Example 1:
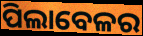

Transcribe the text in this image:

ପିଲାବେଳର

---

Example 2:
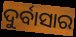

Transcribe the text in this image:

ଦୁର୍ବାସାର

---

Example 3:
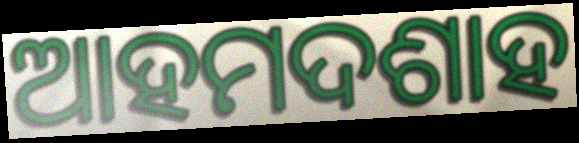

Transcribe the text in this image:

ଆହମଦଶାହ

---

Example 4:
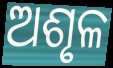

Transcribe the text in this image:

ଅଶୃଳ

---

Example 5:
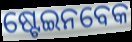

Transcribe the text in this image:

ଷ୍ଟେଇନବେକ